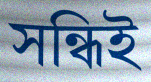
সন্ধিই